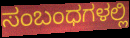
ಸಂಬಂಧಗಳಲ್ಲಿ